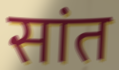
सांत